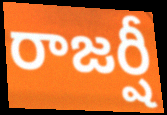
రాజర్షీ